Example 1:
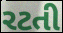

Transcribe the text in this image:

રટતી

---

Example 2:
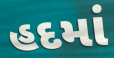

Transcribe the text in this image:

હદમાં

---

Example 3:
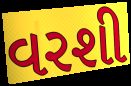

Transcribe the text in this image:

વરશી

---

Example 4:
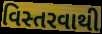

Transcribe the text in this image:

વિસ્તરવાથી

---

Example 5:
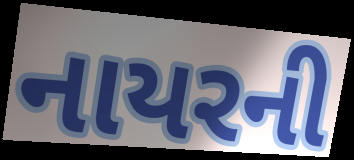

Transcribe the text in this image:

નાયરની